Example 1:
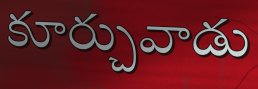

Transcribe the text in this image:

కూర్చువాడు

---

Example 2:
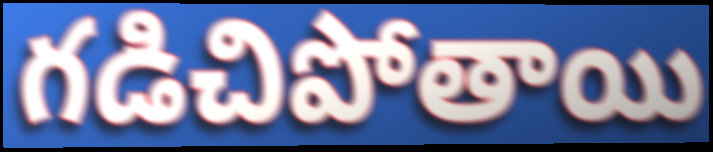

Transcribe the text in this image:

గడిచిపోతాయి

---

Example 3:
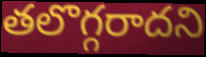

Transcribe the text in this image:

తలొగ్గరాదని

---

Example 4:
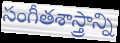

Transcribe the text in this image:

సంగీతశాస్త్రాన్ని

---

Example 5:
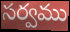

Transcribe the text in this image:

సర్వము